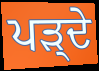
ਪੜ੍ਦੇ